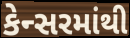
કેન્સરમાંથી